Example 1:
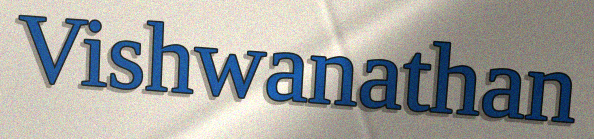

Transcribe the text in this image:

Vishwanathan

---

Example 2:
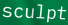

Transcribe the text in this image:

sculpt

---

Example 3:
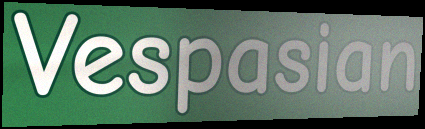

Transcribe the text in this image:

Vespasian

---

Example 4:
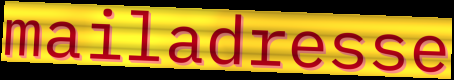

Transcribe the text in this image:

mailadresse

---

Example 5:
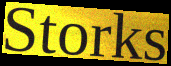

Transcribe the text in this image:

Storks